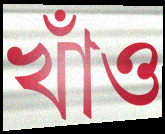
খাঁও